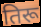
तिरू